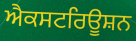
ਐਕਸਟਰਿਊਸ਼ਨ